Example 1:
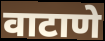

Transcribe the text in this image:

वाटाणे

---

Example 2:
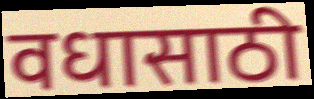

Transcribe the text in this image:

वधासाठी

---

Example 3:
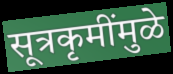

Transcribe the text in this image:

सूत्रकृमींमुळे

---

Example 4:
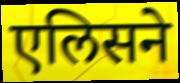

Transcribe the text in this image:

एलिसने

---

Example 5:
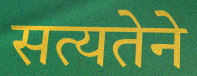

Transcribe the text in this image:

सत्यतेने